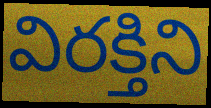
విరక్తిని